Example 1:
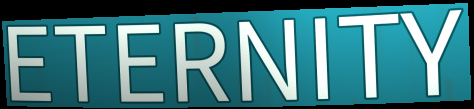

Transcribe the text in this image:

ETERNITY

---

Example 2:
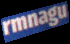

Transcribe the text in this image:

rmnagu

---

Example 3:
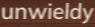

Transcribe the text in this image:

unwieldy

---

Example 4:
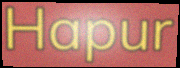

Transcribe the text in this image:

Hapur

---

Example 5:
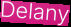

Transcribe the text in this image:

Delany